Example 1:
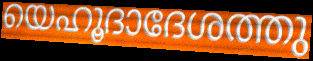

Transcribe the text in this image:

യെഹൂദാദേശത്തു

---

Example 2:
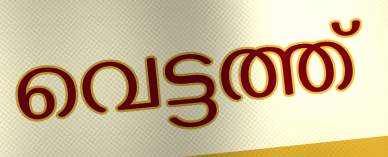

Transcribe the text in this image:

വെട്ടത്ത്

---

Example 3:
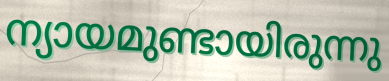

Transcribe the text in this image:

ന്യായമുണ്ടായിരുന്നു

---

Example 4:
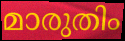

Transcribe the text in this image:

മാരുതിം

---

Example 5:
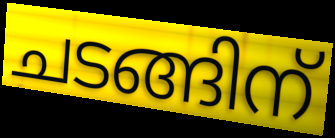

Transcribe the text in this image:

ചടങ്ങിന്